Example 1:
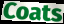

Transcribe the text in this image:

Coats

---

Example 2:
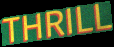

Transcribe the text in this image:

THRILL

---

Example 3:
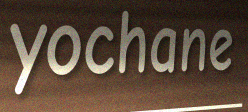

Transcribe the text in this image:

yochane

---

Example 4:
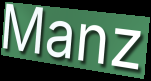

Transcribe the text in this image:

Manz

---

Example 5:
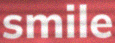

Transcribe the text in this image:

smile